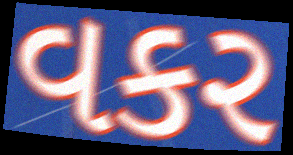
વકર